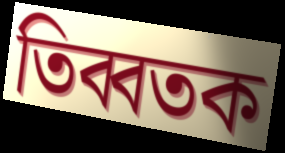
তিব্বতক